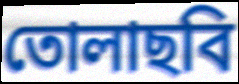
তোলাছবি